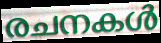
രചനകൾ